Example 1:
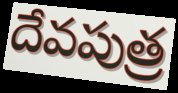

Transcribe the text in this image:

దేవపుత్ర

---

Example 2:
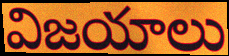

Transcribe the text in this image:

విజయాలు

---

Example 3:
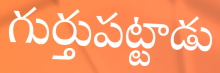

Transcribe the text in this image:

గుర్తుపట్టాడు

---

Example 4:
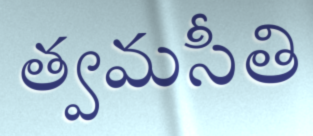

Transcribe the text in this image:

త్వమసీతి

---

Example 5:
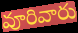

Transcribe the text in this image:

వూరివారు